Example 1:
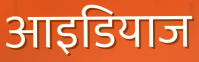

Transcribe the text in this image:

आइडियाज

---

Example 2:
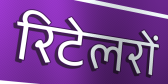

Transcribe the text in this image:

रिटेलरों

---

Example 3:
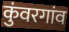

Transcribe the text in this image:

कुंवरगांव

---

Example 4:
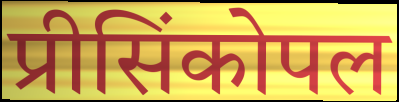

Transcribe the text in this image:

प्रीसिंकोपल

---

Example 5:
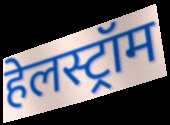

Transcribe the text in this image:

हेलस्ट्रॉम